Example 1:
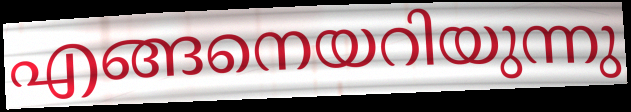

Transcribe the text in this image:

എങ്ങനെയറിയുന്നു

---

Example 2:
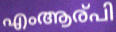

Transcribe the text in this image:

എംആര്പി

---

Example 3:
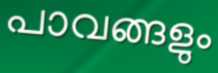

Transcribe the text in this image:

പാവങ്ങളും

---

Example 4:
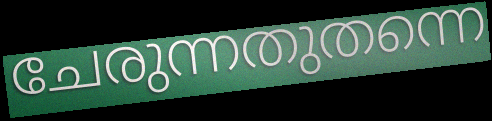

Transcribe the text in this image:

ചേരുന്നതുതന്നെ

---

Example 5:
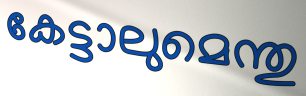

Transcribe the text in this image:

കേട്ടാലുമെന്തു